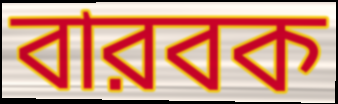
বারবক